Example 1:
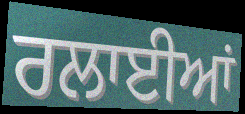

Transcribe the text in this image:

ਰਲਾਈਆਂ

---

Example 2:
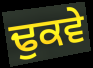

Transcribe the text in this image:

ਢੁਕਵੇ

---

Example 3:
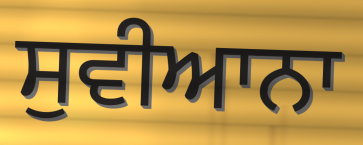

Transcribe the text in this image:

ਸੁਵੀਆਨਾ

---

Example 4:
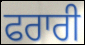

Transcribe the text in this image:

ਫਰਾਰੀ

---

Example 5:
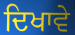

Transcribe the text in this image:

ਦਿਖਾਵੇ